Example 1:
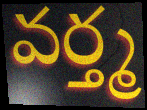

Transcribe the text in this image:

వర్త్మ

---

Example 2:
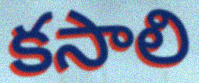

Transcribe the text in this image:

కసాలి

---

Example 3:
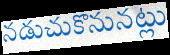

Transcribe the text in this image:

నడుచుకొనునట్లు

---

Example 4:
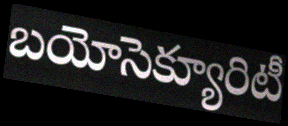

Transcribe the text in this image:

బయోసెక్యూరిటీ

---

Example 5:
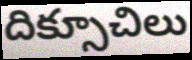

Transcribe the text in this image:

దిక్సూచిలు